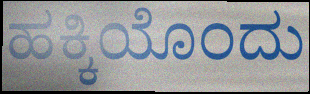
ಹಕ್ಕಿಯೊಂದು